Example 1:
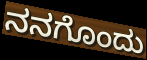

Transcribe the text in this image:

ನನಗೊಂದು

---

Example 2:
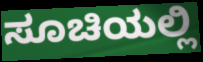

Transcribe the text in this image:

ಸೂಚಿಯಲ್ಲಿ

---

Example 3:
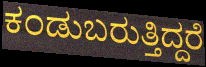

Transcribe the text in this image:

ಕಂಡುಬರುತ್ತಿದ್ದರೆ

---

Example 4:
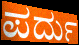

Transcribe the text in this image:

ಪರ್ದು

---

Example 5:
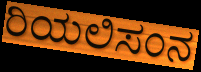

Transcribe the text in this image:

ರಿಯಲಿಸಂನ